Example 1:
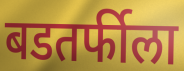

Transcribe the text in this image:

बडतर्फीला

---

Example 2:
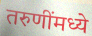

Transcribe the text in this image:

तरुणींमध्ये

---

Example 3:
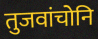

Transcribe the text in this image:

तुजवांचोनि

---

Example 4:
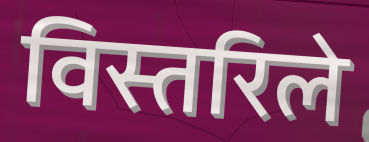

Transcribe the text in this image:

विस्तरिले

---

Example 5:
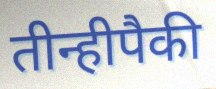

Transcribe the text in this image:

तीन्हीपैकी